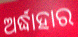
ଅର୍ଦ୍ଧାହାର